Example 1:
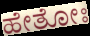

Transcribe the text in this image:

ಹೇತೋಃ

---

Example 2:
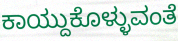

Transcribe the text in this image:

ಕಾಯ್ದುಕೊಳ್ಳುವಂತೆ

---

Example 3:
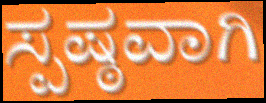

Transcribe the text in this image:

ಸ್ಪಷ್ಠವಾಗಿ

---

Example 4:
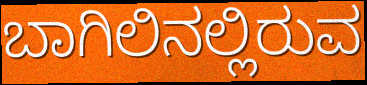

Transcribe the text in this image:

ಬಾಗಿಲಿನಲ್ಲಿರುವ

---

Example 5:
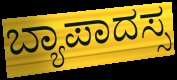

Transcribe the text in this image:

ಬ್ಯಾಪಾದಸ್ಸ